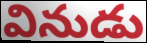
వినుడు